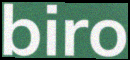
biro